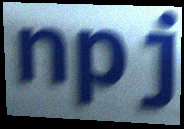
npj